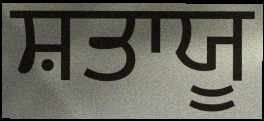
ਸ਼ਤਾਯੂ